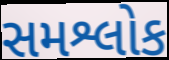
સમશ્લોક